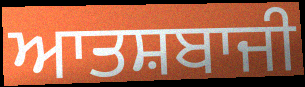
ਆਤਸ਼ਬਾਜੀ